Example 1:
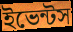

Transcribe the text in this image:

ইভেন্টস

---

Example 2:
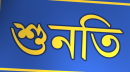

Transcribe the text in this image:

শুনতি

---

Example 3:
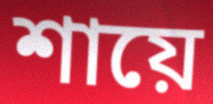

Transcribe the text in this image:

শায়ে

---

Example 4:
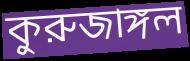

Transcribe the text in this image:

কুরুজাঙ্গল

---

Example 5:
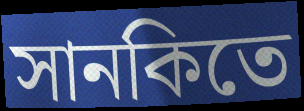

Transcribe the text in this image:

সানকিতে